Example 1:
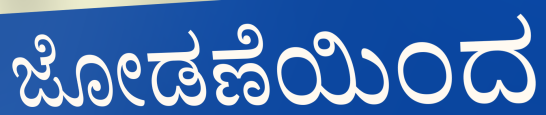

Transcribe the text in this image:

ಜೋಡಣೆಯಿಂದ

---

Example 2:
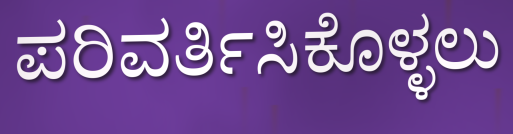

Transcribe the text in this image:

ಪರಿವರ್ತಿಸಿಕೊಳ್ಳಲು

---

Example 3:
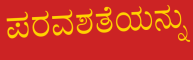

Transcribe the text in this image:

ಪರವಶತೆಯನ್ನು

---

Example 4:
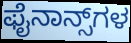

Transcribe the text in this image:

ಫೈನಾನ್ಸ್‌ಗಳ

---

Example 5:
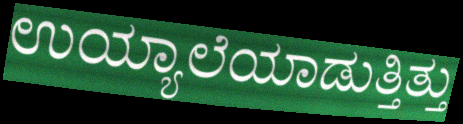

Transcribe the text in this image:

ಉಯ್ಯಾಲೆಯಾಡುತ್ತಿತ್ತು